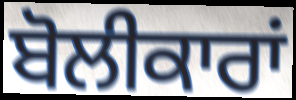
ਬੋਲੀਕਾਰਾਂ